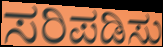
ಸರಿಪಡಿಸು